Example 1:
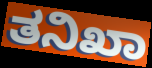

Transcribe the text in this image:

ತನಿಖಾ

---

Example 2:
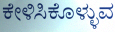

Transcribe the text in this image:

ಕೇಳಿಸಿಕೊಳ್ಳುವ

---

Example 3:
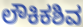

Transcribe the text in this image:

ಲೌಕಿಕಶಿವ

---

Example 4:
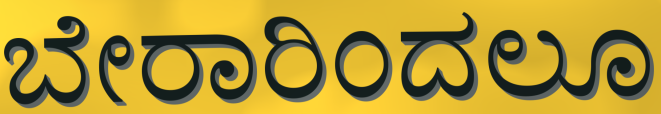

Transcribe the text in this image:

ಬೇರಾರಿಂದಲೂ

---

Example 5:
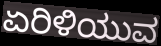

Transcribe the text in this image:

ಏರಿಳಿಯುವ